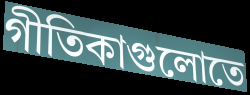
গীতিকাগুলোতে